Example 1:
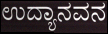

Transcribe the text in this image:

ಉದ್ಯಾನವನ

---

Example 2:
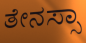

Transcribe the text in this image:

ತೇನಸ್ಸಾ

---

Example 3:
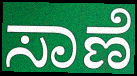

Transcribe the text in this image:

ಸಾಣೆ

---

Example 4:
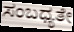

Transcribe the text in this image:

ಸಂಬಧ್ಯತೇ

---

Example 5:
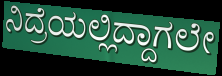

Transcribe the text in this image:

ನಿದ್ರೆಯಲ್ಲಿದ್ದಾಗಲೇ